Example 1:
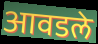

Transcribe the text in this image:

आवडले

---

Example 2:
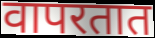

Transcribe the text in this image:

वापरतात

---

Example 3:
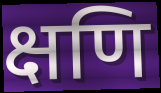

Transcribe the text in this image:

क्षणि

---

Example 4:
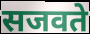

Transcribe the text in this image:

सजवते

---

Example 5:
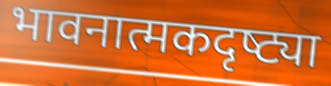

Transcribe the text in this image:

भावनात्मकदृष्ट्या